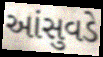
આંસુવડે